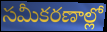
సమీకరణాల్లో